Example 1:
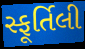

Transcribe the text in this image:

સ્ફૂર્તિલી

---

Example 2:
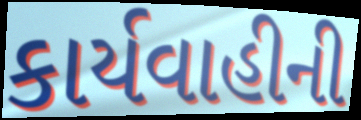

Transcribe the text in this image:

કાર્યવાહીની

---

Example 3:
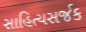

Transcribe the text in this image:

સાહિત્યસર્જક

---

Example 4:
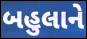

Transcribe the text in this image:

બહુલાને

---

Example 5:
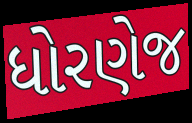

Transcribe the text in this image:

ધોરણેજ